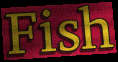
Fish